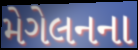
મેગેલનના